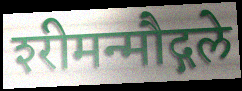
श्रीमन्मौद्गले